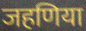
जहणिया